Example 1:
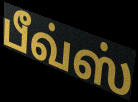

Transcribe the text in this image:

பீவ்ஸ்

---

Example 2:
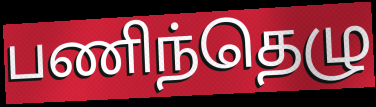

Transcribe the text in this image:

பணிந்தெழு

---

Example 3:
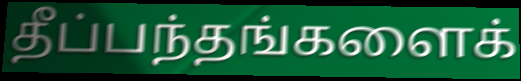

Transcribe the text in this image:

தீப்பந்தங்களைக்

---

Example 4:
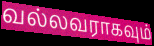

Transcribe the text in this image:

வல்லவராகவும்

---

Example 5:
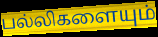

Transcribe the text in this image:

பல்லிகளையும்